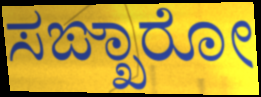
ಸಙ್ಖಾರೋ